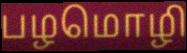
பழமொழி